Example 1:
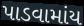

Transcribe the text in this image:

પાડવામાંય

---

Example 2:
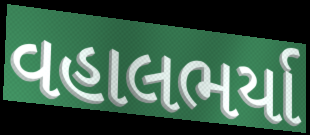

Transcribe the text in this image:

વહાલભર્યા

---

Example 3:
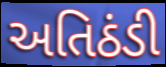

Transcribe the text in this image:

અતિઠંડી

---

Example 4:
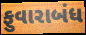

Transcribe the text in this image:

ફુવારાબંધ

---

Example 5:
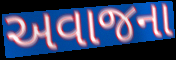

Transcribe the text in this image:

અવાજના